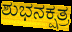
ಶುಭನಕ್ಷತ್ರ